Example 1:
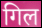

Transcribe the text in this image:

गिल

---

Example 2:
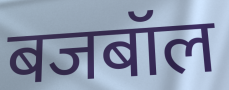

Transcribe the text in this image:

बजबॉल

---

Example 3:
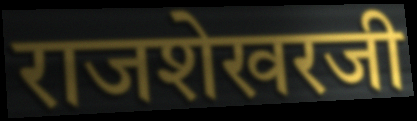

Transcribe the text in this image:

राजशेखरजी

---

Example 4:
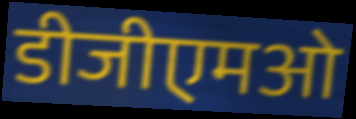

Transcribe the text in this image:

डीजीएमओ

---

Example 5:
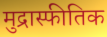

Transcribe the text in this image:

मुद्रास्फीतिक